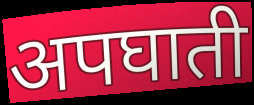
अपघाती